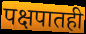
पक्षपातही